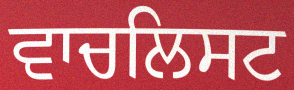
ਵਾਚਲਿਸਟ